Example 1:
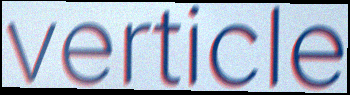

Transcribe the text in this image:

verticle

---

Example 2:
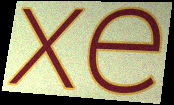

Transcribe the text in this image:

xe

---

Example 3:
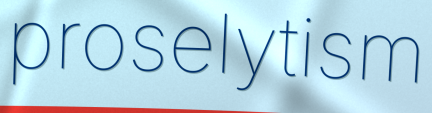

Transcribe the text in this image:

proselytism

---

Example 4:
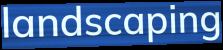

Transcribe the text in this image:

landscaping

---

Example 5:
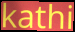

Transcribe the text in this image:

kathi